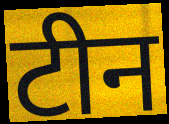
टीन